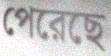
পেরেছে